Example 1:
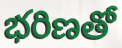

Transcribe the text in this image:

భరిణతో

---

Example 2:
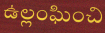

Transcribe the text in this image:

ఉల్లంఘించి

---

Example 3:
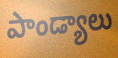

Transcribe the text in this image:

పాండ్యాలు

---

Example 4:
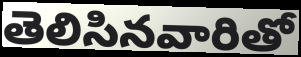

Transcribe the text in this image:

తెలిసినవారితో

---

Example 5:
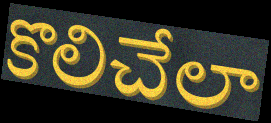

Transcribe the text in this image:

కొలిచేలా